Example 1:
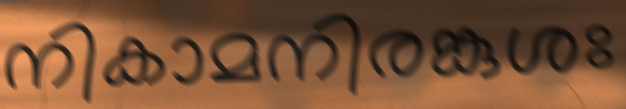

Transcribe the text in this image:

നികാമനിരങ്കുശഃ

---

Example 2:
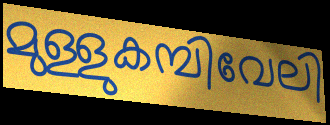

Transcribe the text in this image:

മുള്ളുകമ്പിവേലി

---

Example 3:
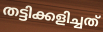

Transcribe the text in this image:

തട്ടിക്കളിച്ചത്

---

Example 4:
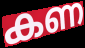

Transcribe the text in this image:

കണ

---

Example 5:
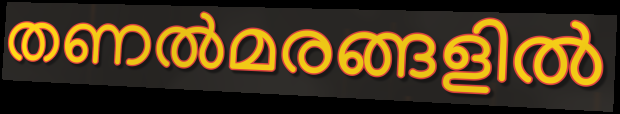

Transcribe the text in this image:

തണൽമരങ്ങളിൽ